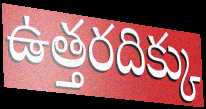
ఉత్తరదిక్కు